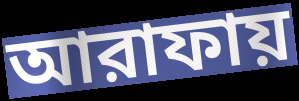
আরাফায়